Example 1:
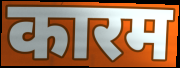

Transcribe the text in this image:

कारम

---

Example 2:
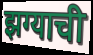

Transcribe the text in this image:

झग्याची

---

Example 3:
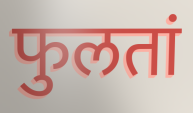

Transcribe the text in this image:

फुलतां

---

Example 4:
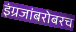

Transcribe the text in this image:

इंग्रजांबरोबरच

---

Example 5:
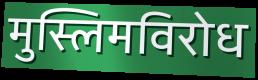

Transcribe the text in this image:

मुस्लिमविरोध